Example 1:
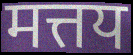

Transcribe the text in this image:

मत्तय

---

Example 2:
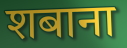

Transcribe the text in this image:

शबाना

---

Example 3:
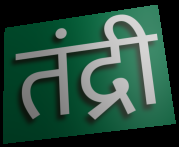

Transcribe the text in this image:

तंद्री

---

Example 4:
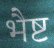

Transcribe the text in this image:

भैष्ट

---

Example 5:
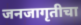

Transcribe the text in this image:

जनजागृतीचा